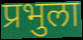
प्रभुला